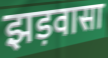
झड़वासा